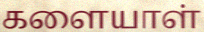
களையாள்